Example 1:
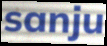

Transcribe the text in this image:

sanju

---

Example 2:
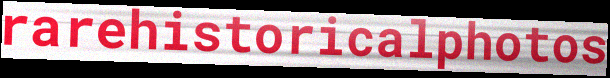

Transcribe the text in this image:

rarehistoricalphotos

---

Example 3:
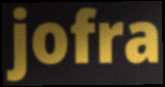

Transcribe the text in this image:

jofra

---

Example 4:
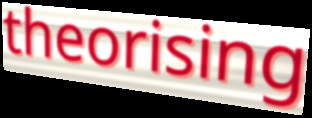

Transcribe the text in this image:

theorising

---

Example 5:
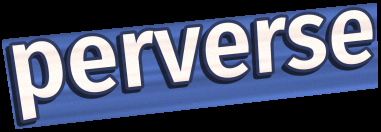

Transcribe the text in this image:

perverse